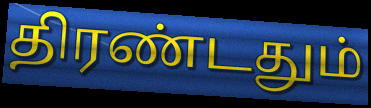
திரண்டதும்